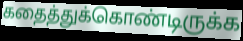
கதைத்துக்கொண்டிருக்க